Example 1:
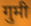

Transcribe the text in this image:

गुमी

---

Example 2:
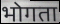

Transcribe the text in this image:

भोगता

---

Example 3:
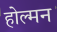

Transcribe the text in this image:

होल्मन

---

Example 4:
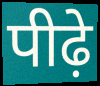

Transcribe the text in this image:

पीढ़े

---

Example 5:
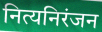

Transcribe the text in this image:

नित्यनिरंजन